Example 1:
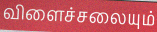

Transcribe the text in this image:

விளைச்சலையும்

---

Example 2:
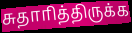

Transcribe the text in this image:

சுதாரித்திருக்க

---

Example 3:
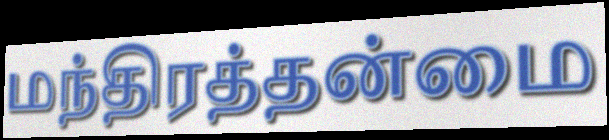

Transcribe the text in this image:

மந்திரத்தன்மை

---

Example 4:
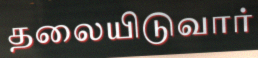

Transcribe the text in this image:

தலையிடுவார்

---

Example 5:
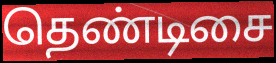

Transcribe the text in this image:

தெண்டிசை